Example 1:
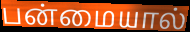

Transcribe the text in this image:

பன்மையால்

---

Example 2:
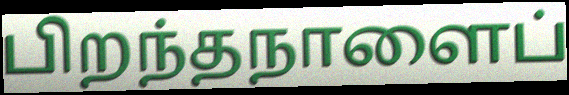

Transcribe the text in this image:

பிறந்தநாளைப்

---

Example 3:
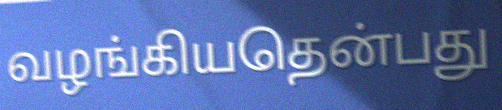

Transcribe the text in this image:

வழங்கியதென்பது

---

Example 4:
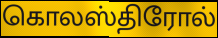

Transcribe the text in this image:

கொலஸ்திரோல்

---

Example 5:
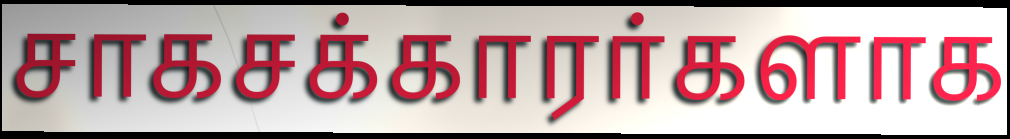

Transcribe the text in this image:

சாகசக்காரர்களாக